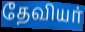
தேவியர்